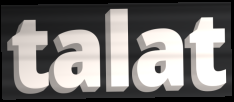
talat